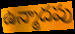
ఉన్మాదపు